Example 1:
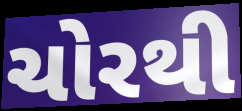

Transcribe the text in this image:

ચોરથી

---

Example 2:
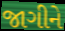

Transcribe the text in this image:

જાગીને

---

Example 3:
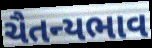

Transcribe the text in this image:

ચૈતન્યભાવ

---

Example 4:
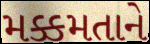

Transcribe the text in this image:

મક્કમતાને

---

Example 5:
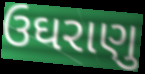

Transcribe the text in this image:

ઉઘરાણુ